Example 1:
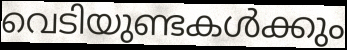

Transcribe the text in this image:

വെടിയുണ്ടകൾക്കും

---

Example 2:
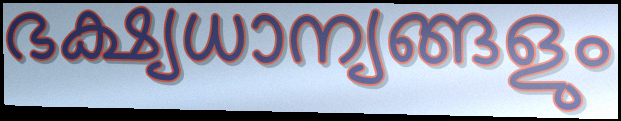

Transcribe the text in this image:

ഭക്ഷ്യധാന്യങ്ങളും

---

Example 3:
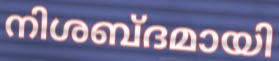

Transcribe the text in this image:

നിശബ്ദമായി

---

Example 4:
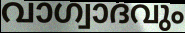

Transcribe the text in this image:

വാഗ്വാദവും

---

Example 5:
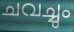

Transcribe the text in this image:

ചവച്ചും